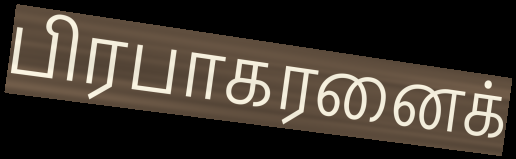
பிரபாகரனைக்